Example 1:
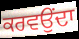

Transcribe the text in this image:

ਕਰਵਉਂਦਾ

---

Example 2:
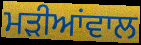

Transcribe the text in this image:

ਮੜੀਆਂਵਾਲ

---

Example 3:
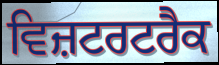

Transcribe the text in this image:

ਵਿਜ਼ਟਰਟਰੈਕ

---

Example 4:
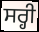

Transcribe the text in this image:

ਸਰ੍ਹੀ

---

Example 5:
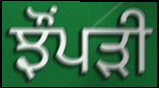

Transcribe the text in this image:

ਝੌਂਪੜੀ